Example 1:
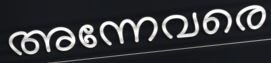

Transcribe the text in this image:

അന്നേവരെ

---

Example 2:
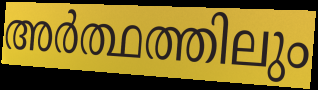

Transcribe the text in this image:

അർത്ഥത്തിലും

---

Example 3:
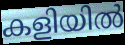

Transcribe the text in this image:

കളിയിൽ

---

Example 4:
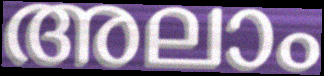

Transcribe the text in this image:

അലാം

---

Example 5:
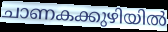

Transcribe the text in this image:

ചാണകക്കുഴിയിൽ